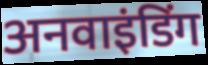
अनवाइंडिंग